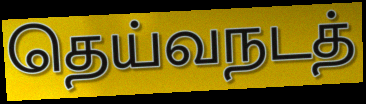
தெய்வநடத்